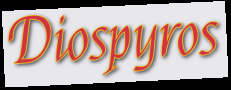
Diospyros